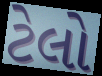
ટેલો